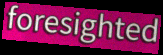
foresighted